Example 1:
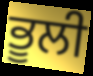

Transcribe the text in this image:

ਭੂਲੀ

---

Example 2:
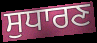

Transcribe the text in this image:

ਸੁਧਾਰਣ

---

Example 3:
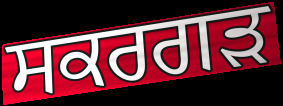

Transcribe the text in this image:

ਸਕਰਗੜ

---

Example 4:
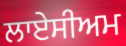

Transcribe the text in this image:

ਲਾਏਸੀਅਮ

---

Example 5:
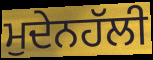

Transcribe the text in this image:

ਮੁਦੇਨਹੱਲੀ